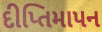
દીપ્તિમાપન